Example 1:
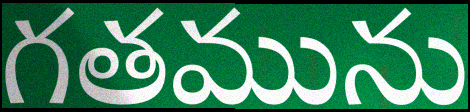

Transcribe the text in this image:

గతమును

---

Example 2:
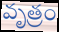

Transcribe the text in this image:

వృత్రం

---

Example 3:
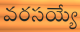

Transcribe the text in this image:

వరసయ్యే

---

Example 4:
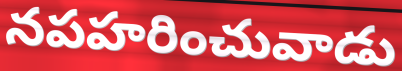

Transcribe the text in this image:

నపహరించువాడు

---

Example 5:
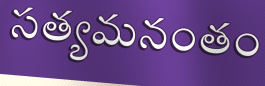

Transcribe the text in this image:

సత్యమనంతం